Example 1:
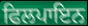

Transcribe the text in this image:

ਫਿਲਪਾਇਨ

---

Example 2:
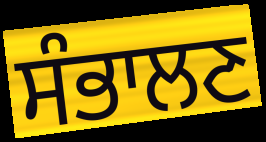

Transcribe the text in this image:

ਸੰਭਾਲਣ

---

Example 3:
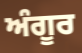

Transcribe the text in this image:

ਅੰਗੂਰ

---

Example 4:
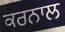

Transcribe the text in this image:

ਕਰਨਾਲ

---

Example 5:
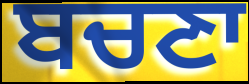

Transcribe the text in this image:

ਬਚਣਾ